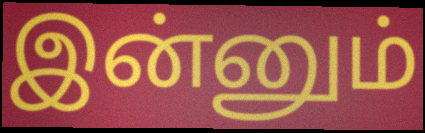
இன்னும்